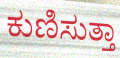
ಕುಣಿಸುತ್ತಾ